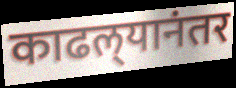
काढल्यानंतर